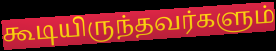
கூடியிருந்தவர்களும்